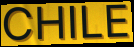
CHILE